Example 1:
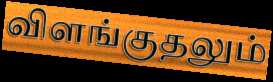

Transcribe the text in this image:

விளங்குதலும்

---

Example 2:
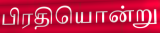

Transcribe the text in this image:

பிரதியொன்று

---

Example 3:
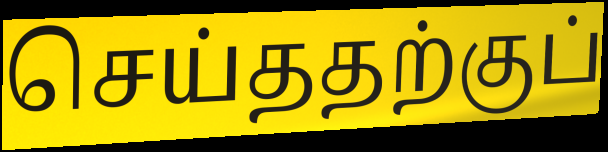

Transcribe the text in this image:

செய்ததற்குப்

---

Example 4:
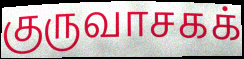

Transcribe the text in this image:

குருவாசகக்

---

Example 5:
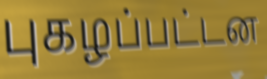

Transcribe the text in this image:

புகழப்பட்டன